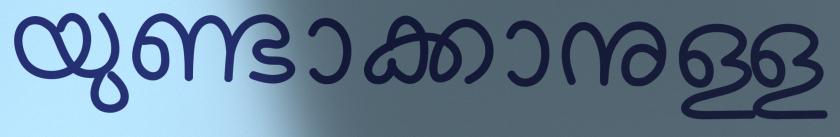
യുണ്ടാക്കാനുള്ള